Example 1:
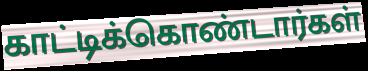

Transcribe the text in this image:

காட்டிக்கொண்டார்கள்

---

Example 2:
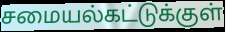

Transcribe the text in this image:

சமையல்கட்டுக்குள்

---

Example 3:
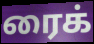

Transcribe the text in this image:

ரைக்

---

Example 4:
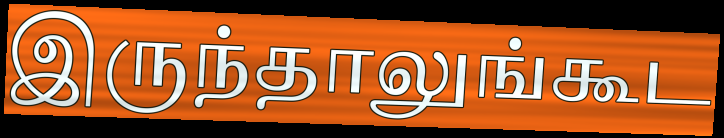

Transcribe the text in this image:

இருந்தாலுங்கூட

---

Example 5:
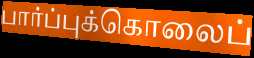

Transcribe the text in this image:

பார்ப்புக்கொலைப்